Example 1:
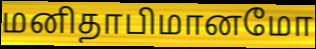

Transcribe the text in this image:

மனிதாபிமானமோ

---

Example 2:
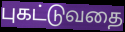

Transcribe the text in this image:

புகட்டுவதை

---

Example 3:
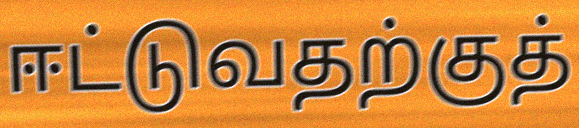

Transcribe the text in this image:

ஈட்டுவதற்குத்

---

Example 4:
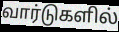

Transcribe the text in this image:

வார்டுகளில்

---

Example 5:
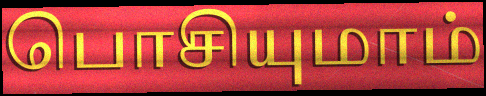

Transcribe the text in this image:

பொசியுமாம்